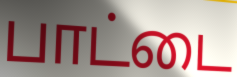
பாட்டை